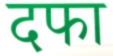
दफा